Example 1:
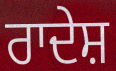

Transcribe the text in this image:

ਰਾਦੇਸ਼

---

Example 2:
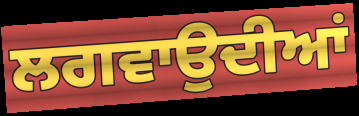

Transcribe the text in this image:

ਲਗਵਾਉਦੀਆਂ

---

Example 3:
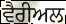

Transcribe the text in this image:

ਵੈਰੀਅਲ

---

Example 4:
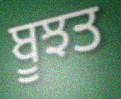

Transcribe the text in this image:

ਬੂਝਤ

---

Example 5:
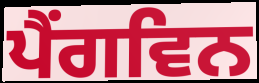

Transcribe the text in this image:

ਪੈਂਗਵਿਨ